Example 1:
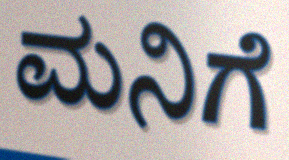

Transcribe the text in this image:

ಮನಿಗೆ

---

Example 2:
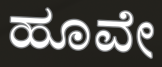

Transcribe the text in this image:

ಹೂವೇ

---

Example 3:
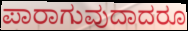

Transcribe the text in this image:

ಪಾರಾಗುವುದಾದರೂ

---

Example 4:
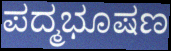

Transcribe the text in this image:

ಪದ್ಮಭೂಷಣ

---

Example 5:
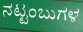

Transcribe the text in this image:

ನಟ್ಟಂಬುಗಳ